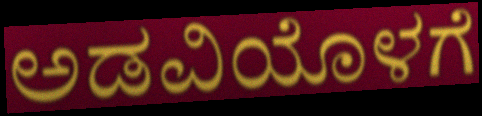
ಅಡವಿಯೊಳಗೆ